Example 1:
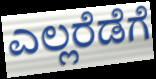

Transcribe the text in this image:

ಎಲ್ಲರೆಡೆಗೆ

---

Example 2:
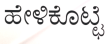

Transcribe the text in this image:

ಹೇಳಿಕೊಟ್ಟೆ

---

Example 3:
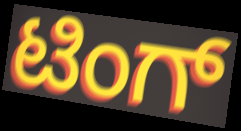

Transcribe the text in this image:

ಟಿಂಗ್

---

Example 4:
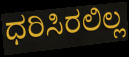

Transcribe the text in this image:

ಧರಿಸಿರಲಿಲ್ಲ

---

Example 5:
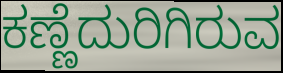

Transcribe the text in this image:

ಕಣ್ಣೆದುರಿಗಿರುವ